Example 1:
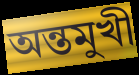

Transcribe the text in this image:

অন্তমুখী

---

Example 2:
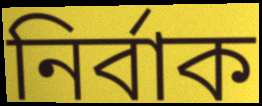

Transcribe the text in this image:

নিৰ্বাক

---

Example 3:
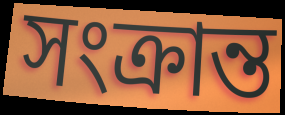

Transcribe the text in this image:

সংক্ৰান্ত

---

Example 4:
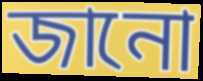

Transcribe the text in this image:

জানো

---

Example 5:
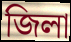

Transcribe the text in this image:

জিলা